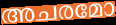
അചരമോ